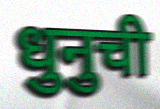
धुनुची